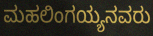
ಮಹಲಿಂಗಯ್ಯನವರು